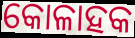
କୋଳାହକ